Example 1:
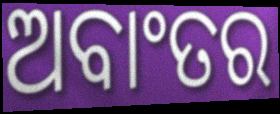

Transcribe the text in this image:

ଅବାଂତର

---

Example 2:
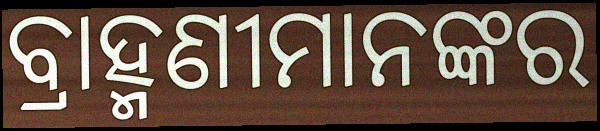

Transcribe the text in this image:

ବ୍ରାହ୍ମଣୀମାନଙ୍କର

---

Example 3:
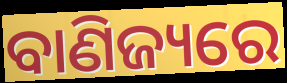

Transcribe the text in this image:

ବାଣିଜ୍ୟରେ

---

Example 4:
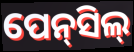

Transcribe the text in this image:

ପେନ୍‌ସିଲ୍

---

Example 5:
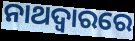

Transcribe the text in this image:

ନାଥଦ୍ୱାରରେ